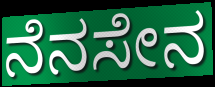
ನೆನಸೇನ